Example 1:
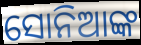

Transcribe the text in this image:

ସୋନିଆଙ୍କ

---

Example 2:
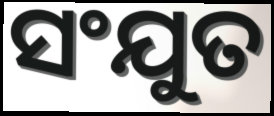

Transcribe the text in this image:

ସଂଯୁତ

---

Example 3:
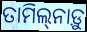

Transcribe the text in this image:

ତାମିଲ୍‌ନାଡ଼ୁ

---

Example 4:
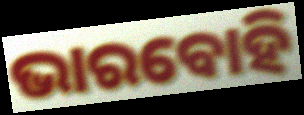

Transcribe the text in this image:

ଭାରବୋହି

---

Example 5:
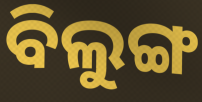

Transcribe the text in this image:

ବିଲୁଙ୍ଗ